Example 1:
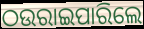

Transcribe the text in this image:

ଠଉରାଇପାରିଲେ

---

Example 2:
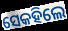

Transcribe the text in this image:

ସେକହିଲେ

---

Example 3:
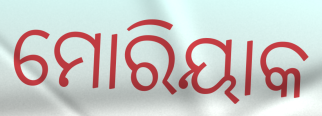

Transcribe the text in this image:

ମୋରିୟାକ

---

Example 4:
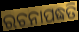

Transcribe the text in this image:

ରଚନାପଦ୍ଧତି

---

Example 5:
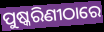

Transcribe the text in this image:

ପୁଷ୍କରିଣୀଠାରେ